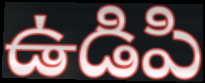
ఉడిపి